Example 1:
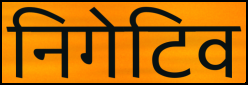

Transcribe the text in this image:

निगेटिव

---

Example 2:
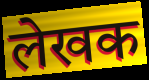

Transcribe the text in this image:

लेखक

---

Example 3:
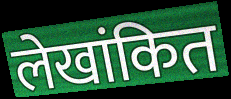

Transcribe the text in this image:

लेखांकित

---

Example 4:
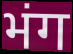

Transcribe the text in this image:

भंग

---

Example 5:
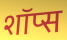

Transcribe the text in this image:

शॉप्स